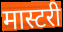
मास्टरी